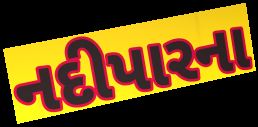
નદીપારના